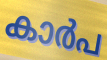
കാർപ